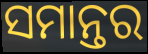
ସମାନ୍ତର